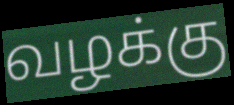
வழக்கு